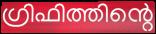
ഗ്രിഫിത്തിന്റെ